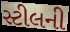
સ્ટીલની